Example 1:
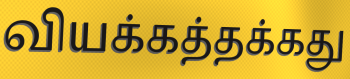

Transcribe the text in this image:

வியக்கத்தக்கது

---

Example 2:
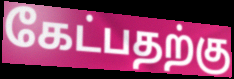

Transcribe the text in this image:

கேட்பதற்கு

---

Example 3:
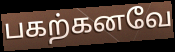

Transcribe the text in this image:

பகற்கனவே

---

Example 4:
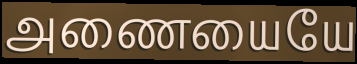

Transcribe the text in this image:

அணையையே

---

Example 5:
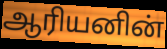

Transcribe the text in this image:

ஆரியனின்